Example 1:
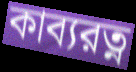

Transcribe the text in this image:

কাব্যরত্ন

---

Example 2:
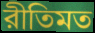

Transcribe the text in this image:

রীতিমত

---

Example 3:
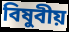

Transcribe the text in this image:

বিষুবীয়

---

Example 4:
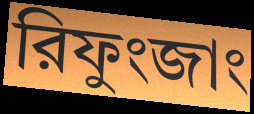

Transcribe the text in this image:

রিফুংজাং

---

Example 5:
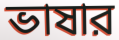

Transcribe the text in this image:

ভাষার